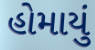
હોમાયું